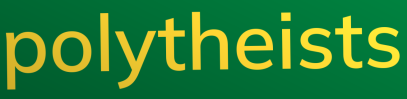
polytheists